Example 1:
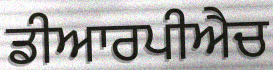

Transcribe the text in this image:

ਡੀਆਰਪੀਐਚ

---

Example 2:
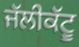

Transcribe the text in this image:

ਜੱਲੀਕੱਟੂ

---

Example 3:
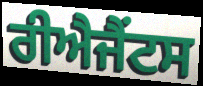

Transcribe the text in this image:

ਰੀਐਜੈਂਟਸ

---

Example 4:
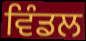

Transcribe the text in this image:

ਵਿੰਡਲ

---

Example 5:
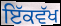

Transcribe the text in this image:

ਇੱਕਵੱਖ